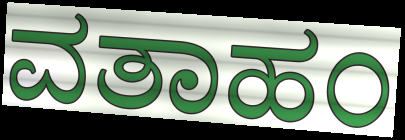
ವತಾಹಂ